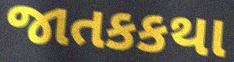
જાતકકથા